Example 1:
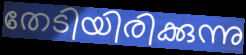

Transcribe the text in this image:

തേടിയിരിക്കുന്നു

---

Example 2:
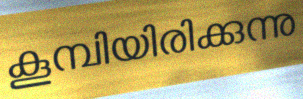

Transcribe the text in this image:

കൂമ്പിയിരിക്കുന്നു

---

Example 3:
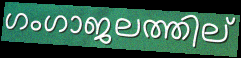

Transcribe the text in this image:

ഗംഗാജലത്തില്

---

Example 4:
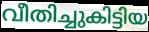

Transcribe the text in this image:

വീതിച്ചുകിട്ടിയ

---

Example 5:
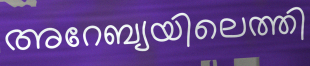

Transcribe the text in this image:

അറേബ്യയിലെത്തി